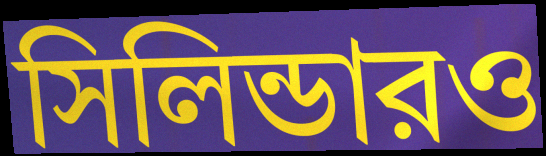
সিলিন্ডারও